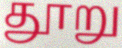
தூறு